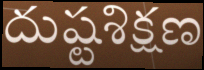
దుష్టశిక్షణ